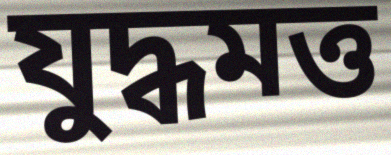
যুদ্ধমত্ত